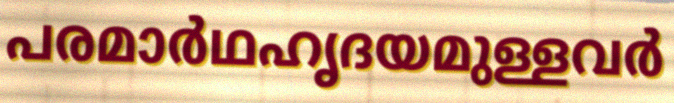
പരമാർഥഹൃദയമുള്ളവർ